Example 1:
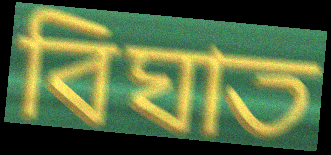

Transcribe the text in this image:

বিঘাত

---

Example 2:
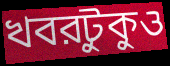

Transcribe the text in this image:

খবরটুকুও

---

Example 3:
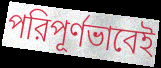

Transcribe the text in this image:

পরিপূর্ণভাবেই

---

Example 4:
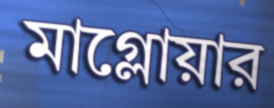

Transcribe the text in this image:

মাগ্লোয়ার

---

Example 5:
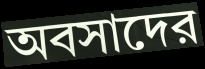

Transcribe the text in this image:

অবসাদের